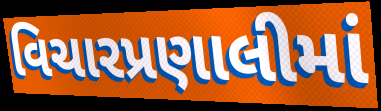
વિચારપ્રણાલીમાં